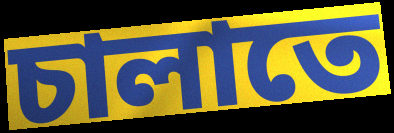
চালাতে